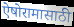
ऐषोरामासाठी